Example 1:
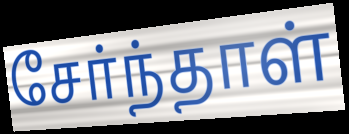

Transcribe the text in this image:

சேர்ந்தாள்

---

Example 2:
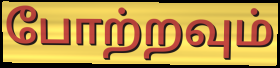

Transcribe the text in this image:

போற்றவும்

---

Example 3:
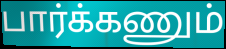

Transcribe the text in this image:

பார்க்கணும்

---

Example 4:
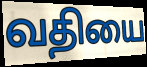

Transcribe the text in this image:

வதியை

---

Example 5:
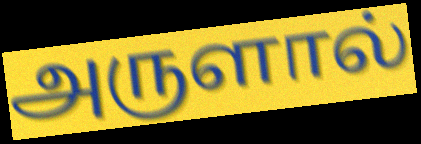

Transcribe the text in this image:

அருளால்